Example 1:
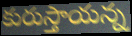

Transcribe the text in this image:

కురుస్తాయన్న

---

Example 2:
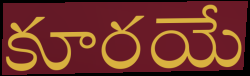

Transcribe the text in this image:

కూరయే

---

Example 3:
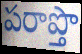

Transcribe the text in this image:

పరాప్తొ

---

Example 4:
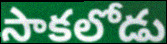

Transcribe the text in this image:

సాకలోడు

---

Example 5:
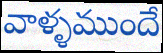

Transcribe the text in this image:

వాళ్ళముందే